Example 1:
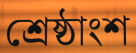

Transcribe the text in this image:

শ্রেষ্ঠাংশ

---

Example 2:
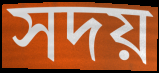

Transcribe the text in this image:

সদয়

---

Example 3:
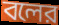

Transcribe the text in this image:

বলের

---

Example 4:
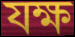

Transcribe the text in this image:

যক্ষ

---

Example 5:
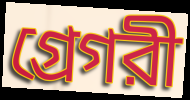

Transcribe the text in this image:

গ্রেগরী